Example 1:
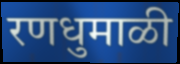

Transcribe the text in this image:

रणधुमाळी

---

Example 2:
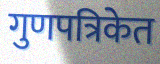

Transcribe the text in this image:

गुणपत्रिकेत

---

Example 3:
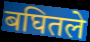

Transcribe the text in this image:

बघितले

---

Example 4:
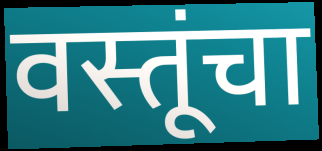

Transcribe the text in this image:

वस्तूंचा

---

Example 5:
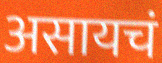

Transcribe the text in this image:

असायचं